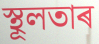
স্থূলতাৰ